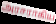
அரசராகிய